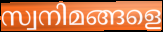
സ്വനിമങ്ങളെ